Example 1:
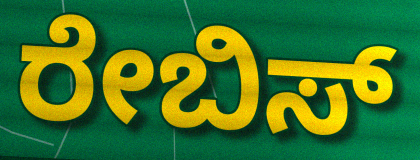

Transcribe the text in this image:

ರೇಬಿಸ್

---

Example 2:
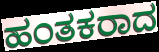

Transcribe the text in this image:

ಹಂತಕರಾದ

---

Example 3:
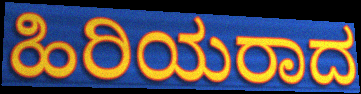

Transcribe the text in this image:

ಹಿರಿಯರಾದ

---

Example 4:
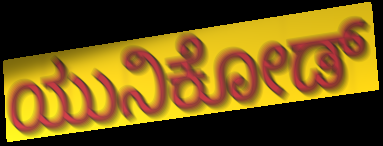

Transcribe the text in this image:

ಯುನಿಕೋಡ್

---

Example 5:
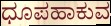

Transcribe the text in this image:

ಧೂಪಹಾಕುವ